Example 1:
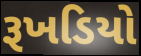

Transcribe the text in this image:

રૂખડિયો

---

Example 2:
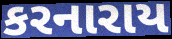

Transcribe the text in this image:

કરનારાય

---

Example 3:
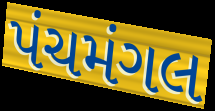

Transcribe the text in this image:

પંચમંગલ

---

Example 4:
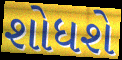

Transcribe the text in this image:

શોધશે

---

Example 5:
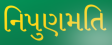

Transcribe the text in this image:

નિપુણમતિ